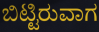
ಬಿಟ್ಟಿರುವಾಗ